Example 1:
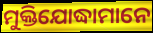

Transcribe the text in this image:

ମୁକ୍ତିଯୋଦ୍ଧାମାନେ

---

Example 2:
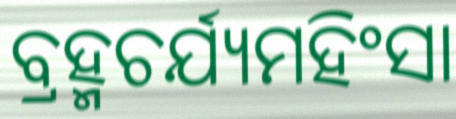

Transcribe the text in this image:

ବ୍ରହ୍ମଚର୍ଯ୍ୟମହିଂସା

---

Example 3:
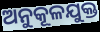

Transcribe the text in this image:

ଅନୁକୂଳଯୁକ୍ତ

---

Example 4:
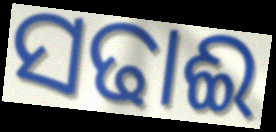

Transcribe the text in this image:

ସଢାଈ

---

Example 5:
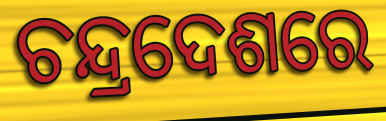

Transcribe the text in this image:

ଚନ୍ଦ୍ରଦେଶରେ